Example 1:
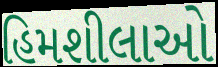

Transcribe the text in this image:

હિમશીલાઓ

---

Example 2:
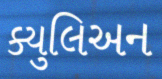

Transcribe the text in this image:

ક્યુલિઅન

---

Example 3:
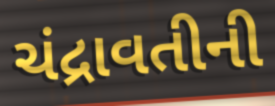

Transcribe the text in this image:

ચંદ્રાવતીની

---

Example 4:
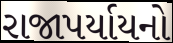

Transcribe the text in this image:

રાજાપર્યાયનો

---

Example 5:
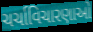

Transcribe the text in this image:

ચર્ચાવિચારણાઓ